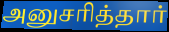
அனுசரித்தார்